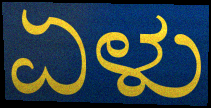
ಏಳು